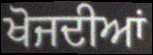
ਖੋਜਦੀਆਂ